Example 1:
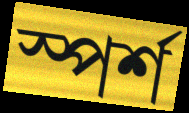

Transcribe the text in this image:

স্পৰ্শ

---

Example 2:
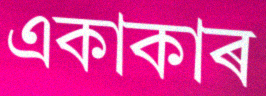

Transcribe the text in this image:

একাকাৰ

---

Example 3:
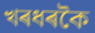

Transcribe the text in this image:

খৰধৰকৈ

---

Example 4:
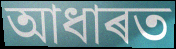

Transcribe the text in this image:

আধাৰত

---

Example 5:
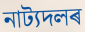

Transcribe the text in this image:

নাট্যদলৰ